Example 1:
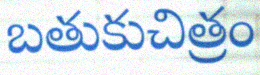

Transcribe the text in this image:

బతుకుచిత్రం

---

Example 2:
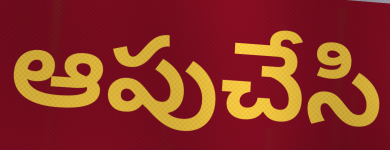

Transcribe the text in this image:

ఆపుచేసి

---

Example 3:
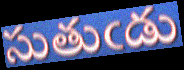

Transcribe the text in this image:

సుతుఁడు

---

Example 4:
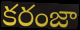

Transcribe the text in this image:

కరంజా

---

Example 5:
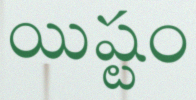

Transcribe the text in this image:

యిష్టం